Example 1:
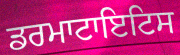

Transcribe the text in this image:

ਡਰਮਾਟਾਇਟਿਸ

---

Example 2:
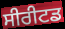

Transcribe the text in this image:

ਸੀਰੀਟਡ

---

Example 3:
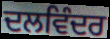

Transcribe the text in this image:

ਦਲਵਿੰਦਰ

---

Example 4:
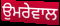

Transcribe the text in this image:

ਉਮਰੇਵਾਲ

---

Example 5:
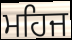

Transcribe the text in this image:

ਮਹਿਜ